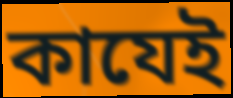
কাযেই